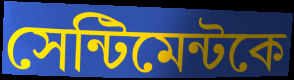
সেন্টিমেন্টকে